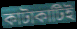
কাটাকাটিই